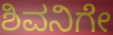
ಶಿವನಿಗೇ